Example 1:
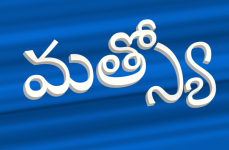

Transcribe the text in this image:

మత్స్యో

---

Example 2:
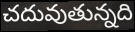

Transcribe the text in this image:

చదువుతున్నది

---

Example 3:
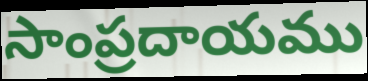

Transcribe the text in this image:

సాంప్రదాయము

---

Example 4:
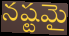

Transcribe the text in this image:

నష్టమై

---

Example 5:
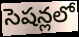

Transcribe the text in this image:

సెషన్లలో